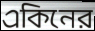
একিনের